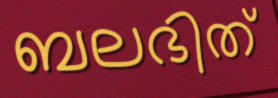
ബലഭിത്